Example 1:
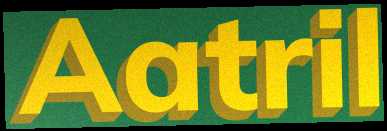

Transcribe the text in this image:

Aatril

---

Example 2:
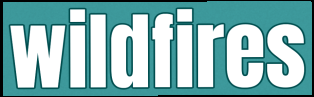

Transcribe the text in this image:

wildfires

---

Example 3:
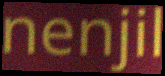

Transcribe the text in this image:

nenjil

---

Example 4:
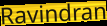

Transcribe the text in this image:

Ravindran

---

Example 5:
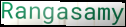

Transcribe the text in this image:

Rangasamy